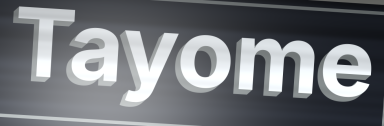
Tayome